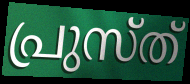
പ്രുസ്ത്